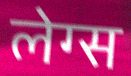
लेग्स